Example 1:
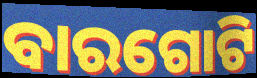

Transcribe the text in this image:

ବାରଗୋଟି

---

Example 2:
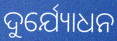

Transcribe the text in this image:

ଦୁର୍ଯ୍ୟୋଧନ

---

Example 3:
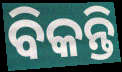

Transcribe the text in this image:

ବିକନ୍ତି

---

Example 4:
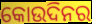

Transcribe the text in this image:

କୋଉଦିନର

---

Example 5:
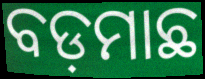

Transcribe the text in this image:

ବଡ଼ମାଛ